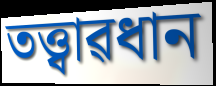
তত্ত্বাৱধান